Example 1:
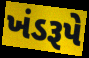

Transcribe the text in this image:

ખંડરૂપે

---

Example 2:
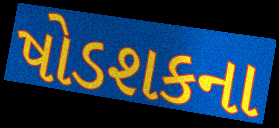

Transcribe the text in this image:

ષોડશકના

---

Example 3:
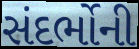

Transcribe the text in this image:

સંદર્ભોની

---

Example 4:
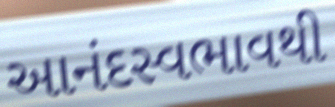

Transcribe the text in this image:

આનંદસ્વભાવથી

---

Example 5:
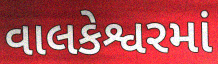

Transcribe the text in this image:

વાલકેશ્વરમાં